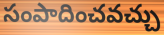
సంపాదించవచ్చు